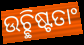
ଉଚ୍ଛିଷ୍ଟତାଂ